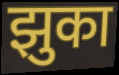
झुका